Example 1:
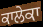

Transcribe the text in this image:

ਕਾਲੇਕਾ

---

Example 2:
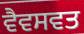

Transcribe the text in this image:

ਵੈਵਸਵਤ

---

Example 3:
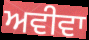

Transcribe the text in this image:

ਅਵੀਵਾ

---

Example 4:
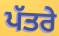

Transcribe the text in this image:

ਪੱਤਰੇ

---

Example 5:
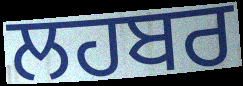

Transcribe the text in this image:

ਲਹਬਰ